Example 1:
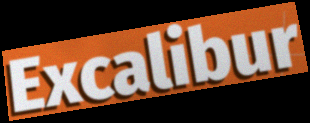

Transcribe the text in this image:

Excalibur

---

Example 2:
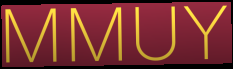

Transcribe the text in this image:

MMUY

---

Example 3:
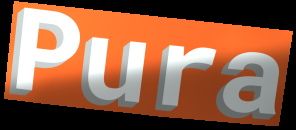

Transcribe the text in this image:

Pura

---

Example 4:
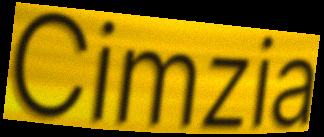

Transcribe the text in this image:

Cimzia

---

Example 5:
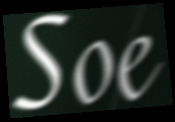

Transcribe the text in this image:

Soe